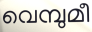
വെമ്പുമീ